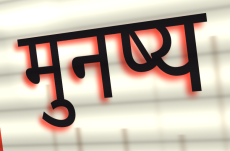
मुनष्य